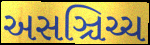
અસઞ્ચિચ્ચ